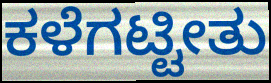
ಕಳೆಗಟ್ಟೀತು